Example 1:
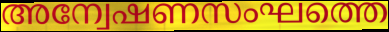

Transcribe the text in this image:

അന്വേഷണസംഘത്തെ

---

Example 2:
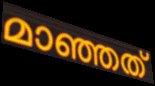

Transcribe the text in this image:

മാഞ്ഞത്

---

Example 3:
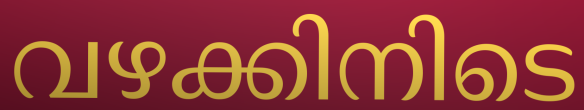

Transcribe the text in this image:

വഴക്കിനിടെ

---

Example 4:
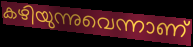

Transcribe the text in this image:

കഴിയുന്നുവെന്നാണ്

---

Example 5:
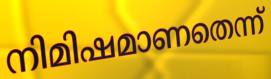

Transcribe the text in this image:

നിമിഷമാണതെന്ന്